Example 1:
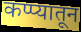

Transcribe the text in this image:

कप्प्यातून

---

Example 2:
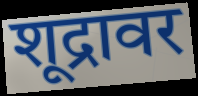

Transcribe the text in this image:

शूद्रावर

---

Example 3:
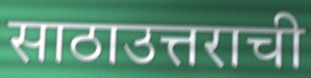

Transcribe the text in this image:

साठाउत्तराची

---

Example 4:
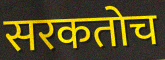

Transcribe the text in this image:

सरकतोच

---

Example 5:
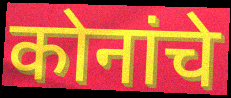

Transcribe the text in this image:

कोनांचे